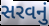
સરવનું